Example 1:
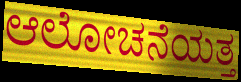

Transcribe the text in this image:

ಆಲೋಚನೆಯತ್ತ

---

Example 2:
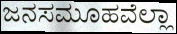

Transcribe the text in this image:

ಜನಸಮೂಹವೆಲ್ಲಾ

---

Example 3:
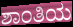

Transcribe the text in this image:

ಶಾಂತಿಯ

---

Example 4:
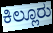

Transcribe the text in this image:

ಕಿಲ್ಲೂರು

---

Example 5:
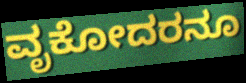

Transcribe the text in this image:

ವೃಕೋದರನೂ